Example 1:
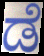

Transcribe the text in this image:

ಡೆ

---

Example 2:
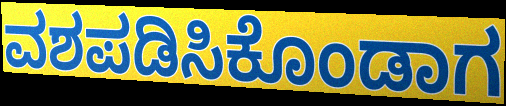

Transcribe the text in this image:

ವಶಪಡಿಸಿಕೊಂಡಾಗ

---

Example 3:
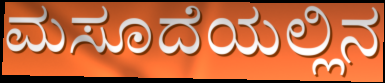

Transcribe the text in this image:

ಮಸೂದೆಯಲ್ಲಿನ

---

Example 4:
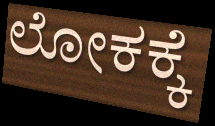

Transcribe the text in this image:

ಲೋಕಕ್ಕೆ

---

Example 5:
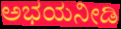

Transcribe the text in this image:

ಅಭಯನೀಡಿ